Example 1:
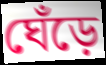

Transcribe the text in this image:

ঘেঁড়ে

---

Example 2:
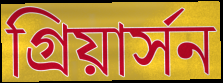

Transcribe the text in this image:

গ্রিয়ার্সন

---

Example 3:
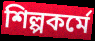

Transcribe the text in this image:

শিল্পকর্মে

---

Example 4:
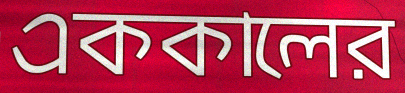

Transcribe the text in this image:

এককালের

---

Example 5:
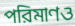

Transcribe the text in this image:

পরিমাণও